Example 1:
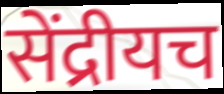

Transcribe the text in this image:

सेंद्रीयच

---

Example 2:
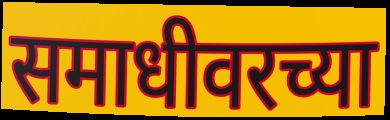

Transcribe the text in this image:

समाधीवरच्या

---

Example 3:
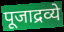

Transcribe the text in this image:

पूजाद्रव्ये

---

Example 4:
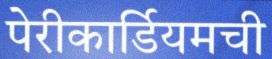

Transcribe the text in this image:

पेरीकार्डियमची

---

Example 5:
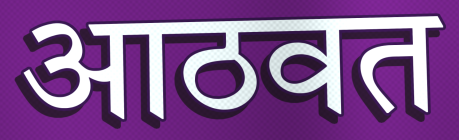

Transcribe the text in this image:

आठवत